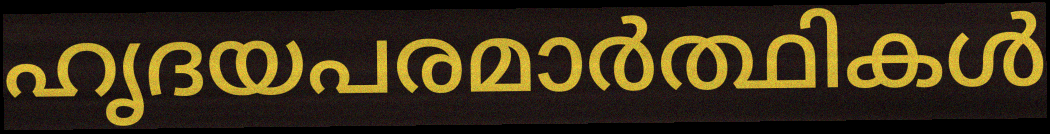
ഹൃദയപരമാർത്ഥികൾ